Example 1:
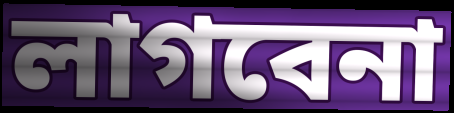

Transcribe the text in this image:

লাগবেনা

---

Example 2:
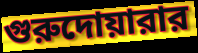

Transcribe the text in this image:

গুরুদোয়ারার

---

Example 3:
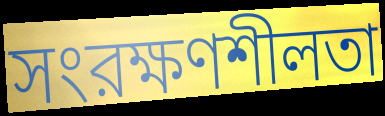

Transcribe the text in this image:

সংরক্ষণশীলতা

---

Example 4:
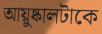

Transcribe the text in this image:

আয়ুষ্কালটাকে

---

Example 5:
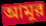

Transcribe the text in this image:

আমুর